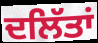
ਦਲਿੱਤਾਂ